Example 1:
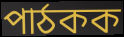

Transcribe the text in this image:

পাঠকক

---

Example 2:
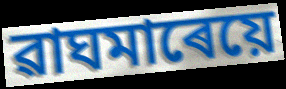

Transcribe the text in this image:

ৱাঘমাৰেয়ে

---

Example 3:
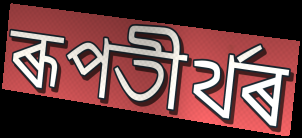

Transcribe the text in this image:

ৰূপতীৰ্থৰ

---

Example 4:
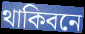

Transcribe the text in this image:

থাকিবনে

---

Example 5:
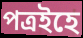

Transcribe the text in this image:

পত্ৰইহে